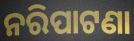
ନରିପାଟଣା